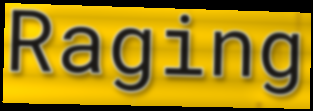
Raging